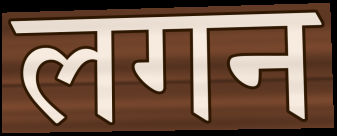
लगन